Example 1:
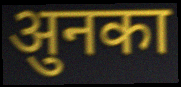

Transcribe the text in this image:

अुनका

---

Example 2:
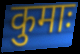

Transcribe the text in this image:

कुमाः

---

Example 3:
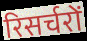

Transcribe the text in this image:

रिसर्चरों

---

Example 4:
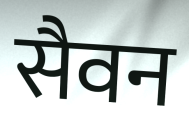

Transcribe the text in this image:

सैवन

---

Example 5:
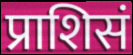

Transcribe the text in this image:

प्राशिसं